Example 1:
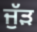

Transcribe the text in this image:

ਜੁੱੜ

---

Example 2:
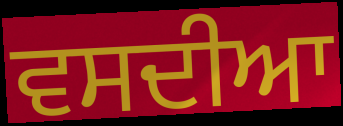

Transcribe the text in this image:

ਵਸਦੀਆ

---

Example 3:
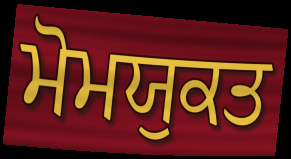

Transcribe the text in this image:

ਮੋਮਯੁਕਤ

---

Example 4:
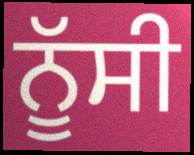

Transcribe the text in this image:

ਨੂੱਸੀ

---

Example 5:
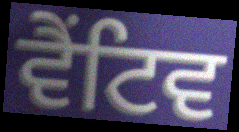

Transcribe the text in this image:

ਵੈਂਟਿਵ